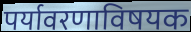
पर्यावरणाविषयक